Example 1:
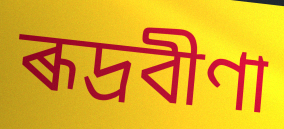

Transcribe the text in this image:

ৰূদ্ৰবীণা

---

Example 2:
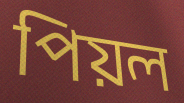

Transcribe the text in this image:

পিয়ল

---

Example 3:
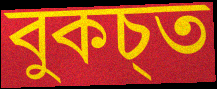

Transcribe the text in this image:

বুকচ্ত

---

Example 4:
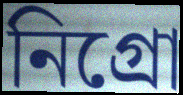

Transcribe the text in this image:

নিগ্ৰো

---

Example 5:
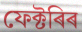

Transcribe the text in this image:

ফেক্টৰিৰ